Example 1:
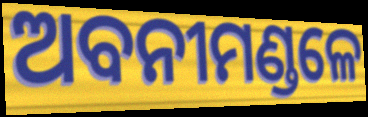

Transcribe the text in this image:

ଅବନୀମଣ୍ଡଳେ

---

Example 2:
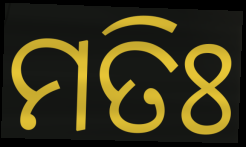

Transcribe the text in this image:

ମତିଃ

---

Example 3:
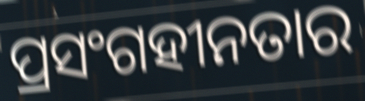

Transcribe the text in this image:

ପ୍ରସଂଗହୀନତାର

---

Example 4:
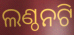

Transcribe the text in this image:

ଲଣ୍ଠନଟି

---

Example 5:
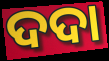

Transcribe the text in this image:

ଦଦା